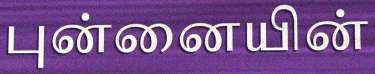
புன்னையின்